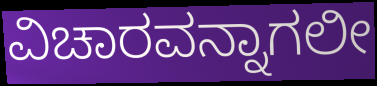
ವಿಚಾರವನ್ನಾಗಲೀ